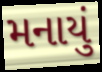
મનાયું